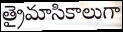
త్రైమాసికాలుగా